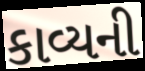
કાવ્યની